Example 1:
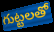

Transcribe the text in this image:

గుట్టలతో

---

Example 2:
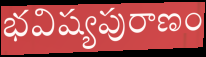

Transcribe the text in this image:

భవిష్యపురాణం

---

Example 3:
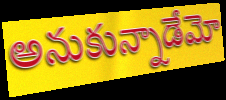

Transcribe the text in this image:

అనుకున్నాడేమో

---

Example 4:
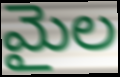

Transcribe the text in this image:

మైల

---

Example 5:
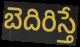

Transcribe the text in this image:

బెదిరిస్తే